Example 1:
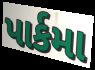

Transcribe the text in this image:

પાર્કમા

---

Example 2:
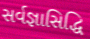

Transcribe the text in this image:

સર્વજ્ઞાસિદ્ધિ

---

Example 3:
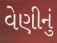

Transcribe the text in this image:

વેણીનું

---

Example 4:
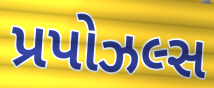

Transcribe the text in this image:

પ્રપોઝલ્સ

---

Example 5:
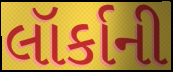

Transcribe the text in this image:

લૉર્કાની